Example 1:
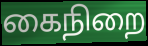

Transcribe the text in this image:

கைநிறை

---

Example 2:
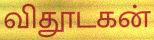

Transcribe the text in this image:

விதூடகன்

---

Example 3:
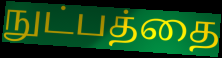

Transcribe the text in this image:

நுட்பத்தை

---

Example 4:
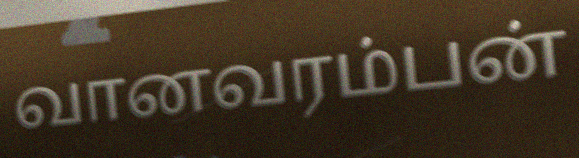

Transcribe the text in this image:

வானவரம்பன்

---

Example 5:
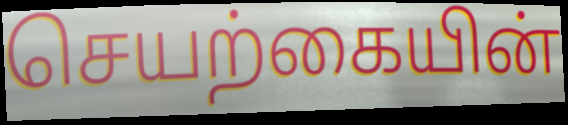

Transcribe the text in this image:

செயற்கையின்